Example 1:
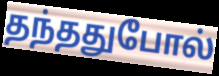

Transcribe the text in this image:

தந்ததுபோல்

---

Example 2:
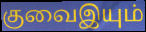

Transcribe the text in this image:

குவைஇயும்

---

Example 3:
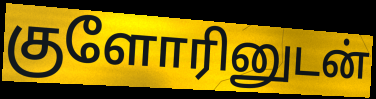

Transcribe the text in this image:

குளோரினுடன்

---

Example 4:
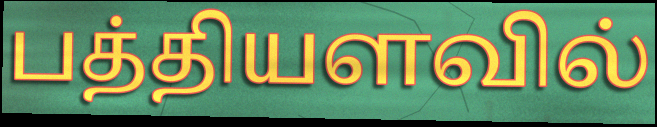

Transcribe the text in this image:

பத்தியளவில்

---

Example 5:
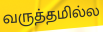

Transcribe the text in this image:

வருத்தமில்ல